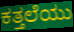
ಕತ್ತಲೆಯು